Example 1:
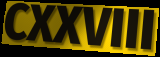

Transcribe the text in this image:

CXXVIII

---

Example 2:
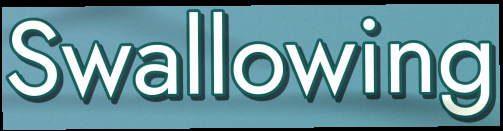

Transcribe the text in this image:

Swallowing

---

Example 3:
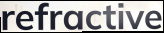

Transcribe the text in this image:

refractive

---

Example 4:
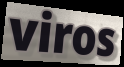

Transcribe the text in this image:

viros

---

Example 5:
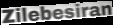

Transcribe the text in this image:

Zilebesiran